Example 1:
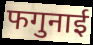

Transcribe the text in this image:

फगुनाई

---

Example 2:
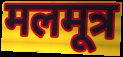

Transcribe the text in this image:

मलमूत्र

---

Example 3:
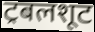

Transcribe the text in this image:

ट्रबलशूट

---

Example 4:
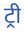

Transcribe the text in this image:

ट्री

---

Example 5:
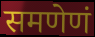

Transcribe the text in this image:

समणेणं